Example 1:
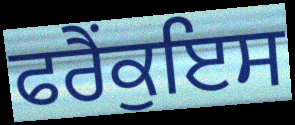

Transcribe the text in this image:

ਫਰੈਂਕੁਇਸ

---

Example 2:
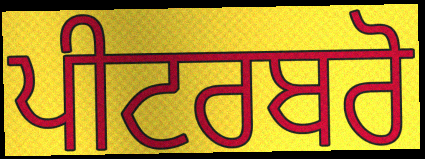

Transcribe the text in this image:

ਪੀਟਰਬਰੋ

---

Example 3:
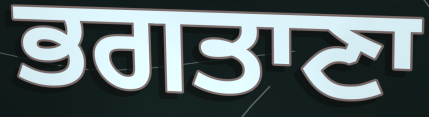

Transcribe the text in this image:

ਭਗਤਾਣਾ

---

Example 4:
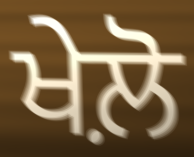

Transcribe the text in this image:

ਖੇਲ਼ੋ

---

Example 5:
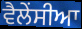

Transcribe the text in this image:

ਵੈਲੇਂਸੀਆ